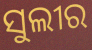
ସୁଲୀର